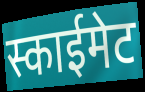
स्काईमेट